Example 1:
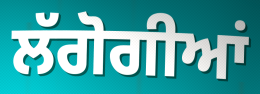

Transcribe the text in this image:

ਲੱਗੋਗੀਆਂ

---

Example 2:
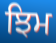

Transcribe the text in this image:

ਝਿਮ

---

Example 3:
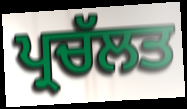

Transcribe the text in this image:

ਪ੍ਰਚੱਲਤ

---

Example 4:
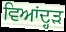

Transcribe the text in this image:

ਵਿਆਂਦ੍ਹੜ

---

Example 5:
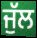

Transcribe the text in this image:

ਜੁੱਲ